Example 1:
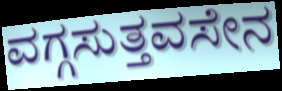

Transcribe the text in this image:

ವಗ್ಗಸುತ್ತವಸೇನ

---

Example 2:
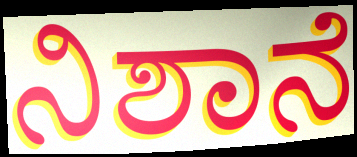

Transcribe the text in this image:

ನಿಶಾನೆ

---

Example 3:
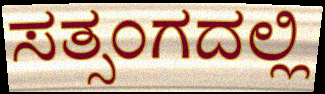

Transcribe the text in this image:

ಸತ್ಸಂಗದಲ್ಲಿ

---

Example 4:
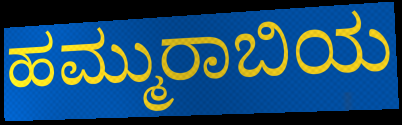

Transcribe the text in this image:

ಹಮ್ಮುರಾಬಿಯ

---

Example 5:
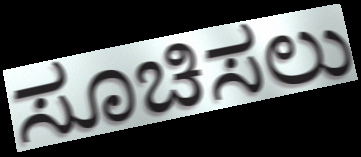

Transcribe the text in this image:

ಸೂಚಿಸಲು